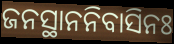
ଜନସ୍ଥାନନିବାସିନଃ